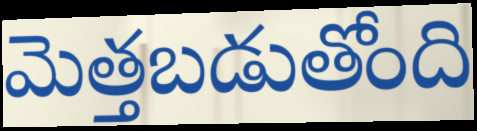
మెత్తబడుతోంది